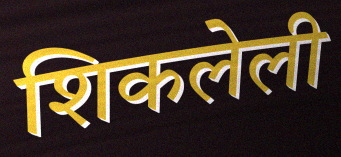
शिकलेली